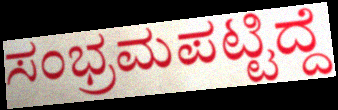
ಸಂಭ್ರಮಪಟ್ಟಿದ್ದೆ